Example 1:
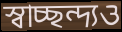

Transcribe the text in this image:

স্বাচ্ছন্দ্যও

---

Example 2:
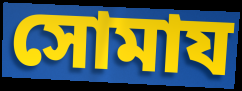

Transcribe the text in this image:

সোমায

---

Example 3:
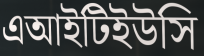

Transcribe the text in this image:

এআইটিইউসি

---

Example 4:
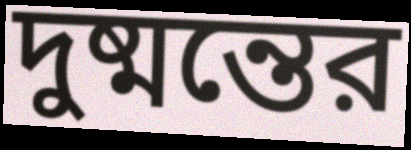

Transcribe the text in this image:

দুষ্মন্তের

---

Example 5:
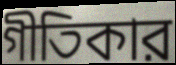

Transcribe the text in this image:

গীতিকার